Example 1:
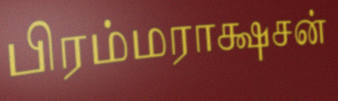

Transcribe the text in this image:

பிரம்மராக்ஷசன்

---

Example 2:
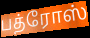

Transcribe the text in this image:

பத்ரோஸ்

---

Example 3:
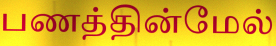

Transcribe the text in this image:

பணத்தின்மேல்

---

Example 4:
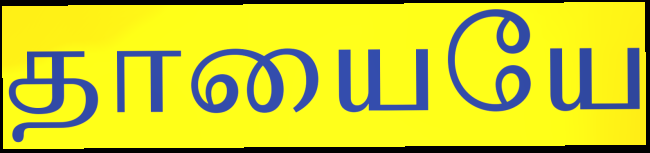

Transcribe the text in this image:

தாயையே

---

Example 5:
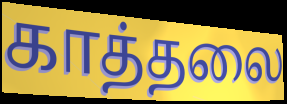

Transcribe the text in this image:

காத்தலை